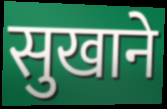
सुखाने